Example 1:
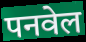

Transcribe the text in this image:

पनवेल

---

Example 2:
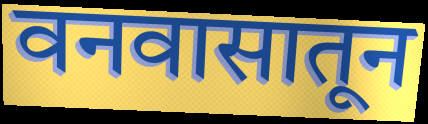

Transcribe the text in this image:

वनवासातून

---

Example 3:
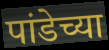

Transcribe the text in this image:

पांडेच्या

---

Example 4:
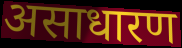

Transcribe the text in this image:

असाधारण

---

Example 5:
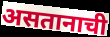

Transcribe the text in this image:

असतानाची